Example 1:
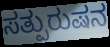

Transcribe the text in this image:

ಸತ್ಪುರುಷನ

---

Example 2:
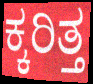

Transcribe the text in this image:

ಕ್ಕರಿತ್ತ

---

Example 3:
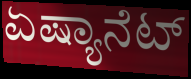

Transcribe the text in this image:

ಏಷ್ಯಾನೆಟ್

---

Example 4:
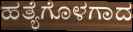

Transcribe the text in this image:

ಹತ್ಯೆಗೊಳಗಾದ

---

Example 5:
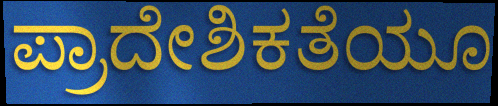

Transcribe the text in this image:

ಪ್ರಾದೇಶಿಕತೆಯೂ